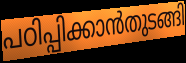
പഠിപ്പിക്കാൻതുടങ്ങി